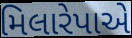
મિલારેપાએ